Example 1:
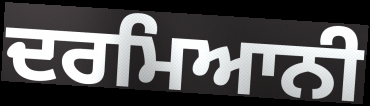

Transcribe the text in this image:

ਦਰਮਿਆਨੀ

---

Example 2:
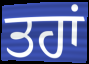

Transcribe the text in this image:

ਤਹਾਂ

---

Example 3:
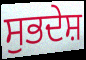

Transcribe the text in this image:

ਸੁਭਦੇਸ਼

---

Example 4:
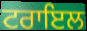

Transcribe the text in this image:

ਟਰਾਇਲ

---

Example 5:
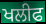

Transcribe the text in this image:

ਖਲੀਫ